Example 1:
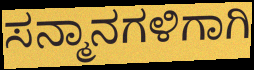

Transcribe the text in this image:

ಸನ್ಮಾನಗಳಿಗಾಗಿ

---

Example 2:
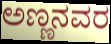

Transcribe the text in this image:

ಅಣ್ಣನವರ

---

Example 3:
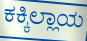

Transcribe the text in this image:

ಕಕ್ಕಿಲ್ಲಾಯ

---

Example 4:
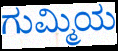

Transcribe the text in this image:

ಗುಮ್ಮಿಯ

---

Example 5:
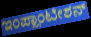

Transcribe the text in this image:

ಇಂಪ್ಲಾಂಟೇಶನ್